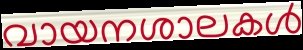
വായനശാലകൾ